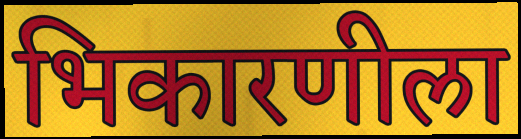
भिकारणीला